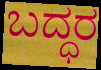
ಬದ್ಧರ